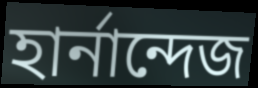
হার্নান্দেজ